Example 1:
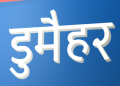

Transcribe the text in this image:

डुमैहर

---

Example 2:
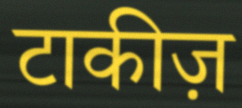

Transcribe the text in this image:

टाकीज़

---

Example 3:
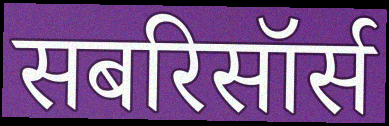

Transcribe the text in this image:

सबरिसॉर्स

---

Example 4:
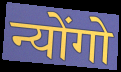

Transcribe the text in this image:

न्योंगो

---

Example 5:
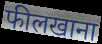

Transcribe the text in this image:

फीलखाना